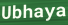
Ubhaya